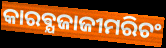
କାରଵ୍ଯଜାଜୀମରିଚଂ